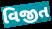
વિજીત